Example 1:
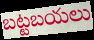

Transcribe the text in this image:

బట్టబయలు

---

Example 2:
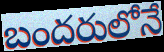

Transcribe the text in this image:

బందరులోనే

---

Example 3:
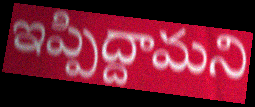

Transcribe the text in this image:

ఇప్పిద్దామని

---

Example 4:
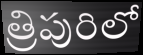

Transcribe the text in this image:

త్రిపురిలో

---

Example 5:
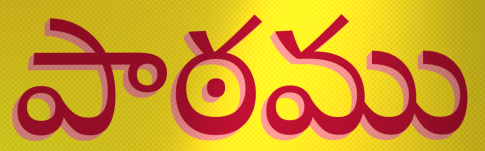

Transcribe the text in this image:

పాఠము